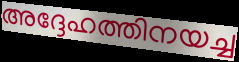
അദ്ദേഹത്തിനയച്ച